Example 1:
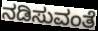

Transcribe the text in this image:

ನಡಿಸುವಂತೆ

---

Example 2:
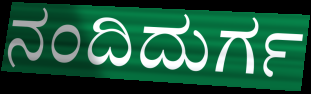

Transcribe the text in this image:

ನಂದಿದುರ್ಗ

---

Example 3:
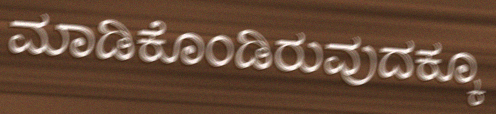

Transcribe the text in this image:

ಮಾಡಿಕೊಂಡಿರುವುದಕ್ಕೂ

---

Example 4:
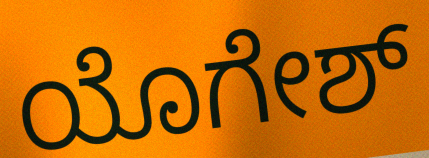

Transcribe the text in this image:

ಯೊಗೇಶ್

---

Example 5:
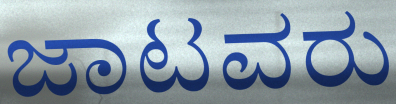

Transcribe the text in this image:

ಜಾಟವರು